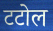
टटोल